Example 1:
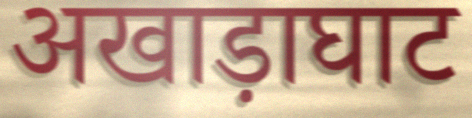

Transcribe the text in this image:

अखाड़ाघाट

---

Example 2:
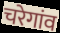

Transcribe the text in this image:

चरेगांव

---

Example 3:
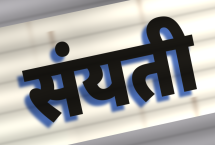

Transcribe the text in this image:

संयती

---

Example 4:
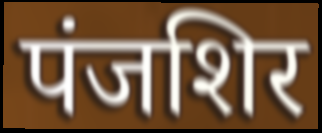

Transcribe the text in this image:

पंजशिर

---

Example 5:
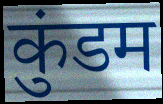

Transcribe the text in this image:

कुंडम